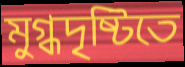
মুগ্ধদৃষ্টিতে